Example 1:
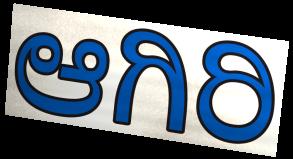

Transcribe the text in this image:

ಆಗಿರಿ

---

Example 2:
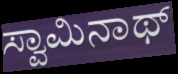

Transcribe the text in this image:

ಸ್ವಾಮಿನಾಥ್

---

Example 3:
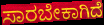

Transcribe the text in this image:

ಸಾರಬೇಕಾಗಿದೆ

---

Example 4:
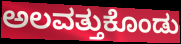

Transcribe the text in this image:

ಅಲವತ್ತುಕೊಂಡು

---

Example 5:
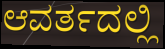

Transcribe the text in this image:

ಆವರ್ತದಲ್ಲಿ